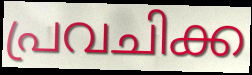
പ്രവചിക്ക